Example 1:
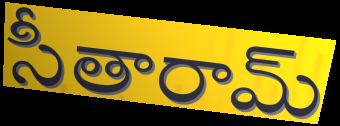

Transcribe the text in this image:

సీతారామ్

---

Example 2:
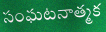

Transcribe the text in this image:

సంఘటనాత్మక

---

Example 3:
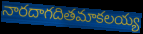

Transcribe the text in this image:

నారదాగదితమాకలయ్య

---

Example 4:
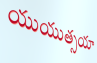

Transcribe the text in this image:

యుయుత్సయా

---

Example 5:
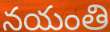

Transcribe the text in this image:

నయంతి